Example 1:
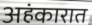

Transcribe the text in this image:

अहंकारात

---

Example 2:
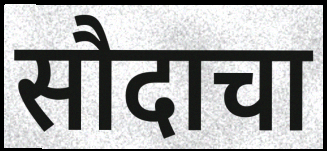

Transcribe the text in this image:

सौदाचा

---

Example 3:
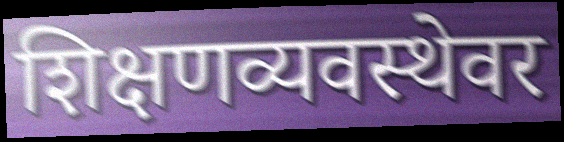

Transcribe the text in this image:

शिक्षणव्यवस्थेवर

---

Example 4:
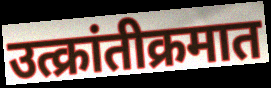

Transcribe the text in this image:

उत्क्रांतीक्रमात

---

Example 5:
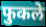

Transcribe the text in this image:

फुकले